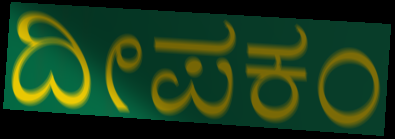
ದೀಪಕಂ